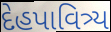
દેહપાવિત્ર્ય